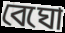
বেঘো